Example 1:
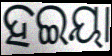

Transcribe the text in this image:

ହଇୟା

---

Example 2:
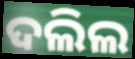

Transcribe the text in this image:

ଦଲିଲ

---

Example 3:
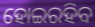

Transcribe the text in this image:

ହୋଇରହିବ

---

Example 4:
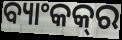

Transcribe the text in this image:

ବ୍ୟାଂକକ୍‍ର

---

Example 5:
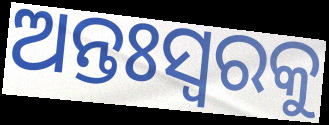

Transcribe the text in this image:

ଅନ୍ତଃସ୍ୱରକୁ